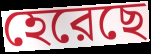
হেরেছে